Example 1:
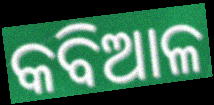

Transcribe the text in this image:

କବିଆଳ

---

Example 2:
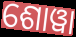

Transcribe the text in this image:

ଶୋୱା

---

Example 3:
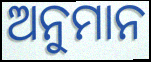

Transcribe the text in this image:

ଅନୁମାନ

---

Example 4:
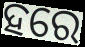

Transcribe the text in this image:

ହରେ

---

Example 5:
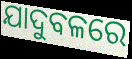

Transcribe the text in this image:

ଯାଦୁବଳରେ